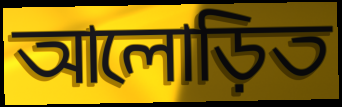
আলোড়িত